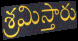
శ్రమిస్తారు